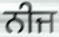
ਨੀਜ